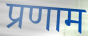
प्रणाम